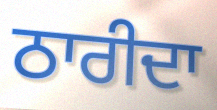
ਠਾਰੀਦਾ